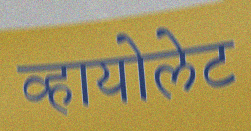
व्हायोलेट